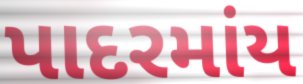
પાદરમાંય